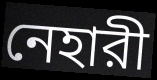
নেহারী